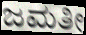
ಜಮತೀ